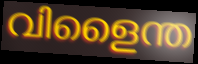
വിളൈന്ത